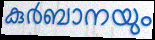
കുർബാനയും